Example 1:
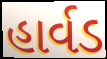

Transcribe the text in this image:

હાર્વડ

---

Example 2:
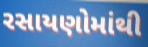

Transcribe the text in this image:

રસાયણોમાંથી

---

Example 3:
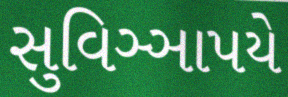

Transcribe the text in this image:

સુવિઞ્ઞાપયે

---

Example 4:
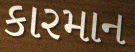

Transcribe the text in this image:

કારમાન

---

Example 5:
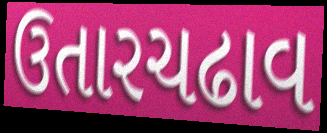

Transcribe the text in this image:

ઉતારચઢાવ